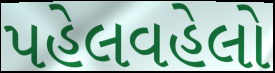
પહેલવહેલો